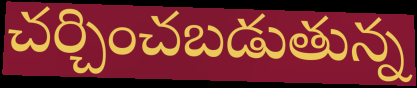
చర్చించబడుతున్న